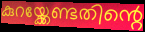
കുറയ്ക്കേണ്ടതിന്റെ